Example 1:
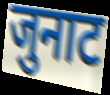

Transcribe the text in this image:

जुनाट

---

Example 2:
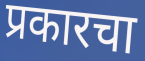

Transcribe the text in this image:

प्रकारचा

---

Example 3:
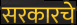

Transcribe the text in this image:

सरकारचे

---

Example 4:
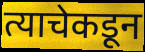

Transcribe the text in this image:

त्याचेकडून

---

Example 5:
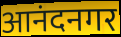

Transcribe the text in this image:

आनंदनगर